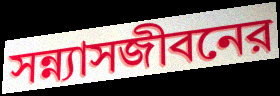
সন্ন্যাসজীবনের